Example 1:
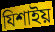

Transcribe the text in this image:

যিশাইয়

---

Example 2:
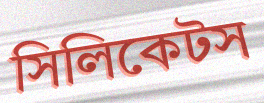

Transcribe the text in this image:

সিলিকেটস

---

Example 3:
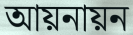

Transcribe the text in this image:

আয়নায়ন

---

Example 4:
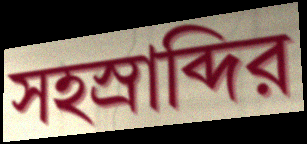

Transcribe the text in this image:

সহস্রাব্দির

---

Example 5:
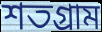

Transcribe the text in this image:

শতগ্রাম